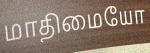
மாதிமையோ